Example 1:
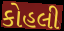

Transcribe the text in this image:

કોહલી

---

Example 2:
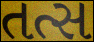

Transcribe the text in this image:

તત્સ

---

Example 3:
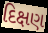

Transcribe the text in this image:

દિક્ષણ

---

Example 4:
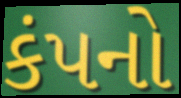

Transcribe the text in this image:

કંપનો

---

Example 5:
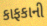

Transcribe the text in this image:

કાફકાની